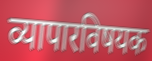
व्यापारविषयक